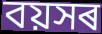
বয়সৰ